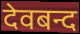
देवबन्द